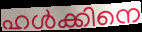
ഹൾക്കിനെ